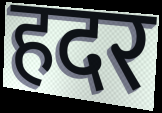
हदर